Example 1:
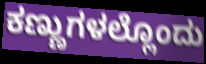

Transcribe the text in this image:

ಕಣ್ಣುಗಳಲ್ಲೊಂದು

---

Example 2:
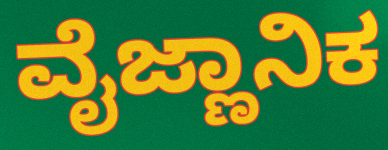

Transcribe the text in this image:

ವೈಜ್ಣಾನಿಕ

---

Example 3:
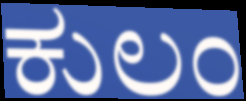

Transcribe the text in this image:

ಕುಲಂ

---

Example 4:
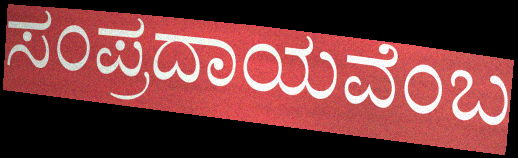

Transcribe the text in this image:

ಸಂಪ್ರದಾಯವೆಂಬ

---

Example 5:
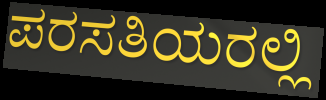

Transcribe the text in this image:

ಪರಸತಿಯರಲ್ಲಿ